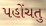
પહોંચતુ